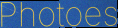
Photoes